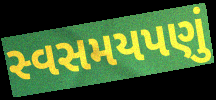
સ્વસમયપણું